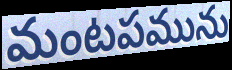
మంటపమును